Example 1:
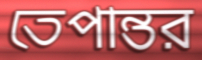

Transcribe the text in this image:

তেপান্তর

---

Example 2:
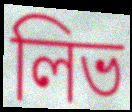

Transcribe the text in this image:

লিভ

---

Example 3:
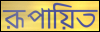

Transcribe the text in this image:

রূপায়িত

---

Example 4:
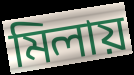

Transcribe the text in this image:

মিলায়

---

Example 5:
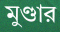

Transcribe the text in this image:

মুণ্ডার